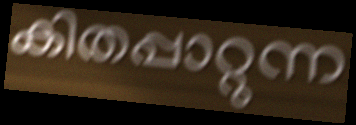
കിതപ്പാറ്റുന്ന